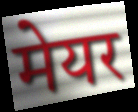
मेयर